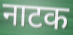
नाटक